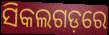
ସିକଲଗଡ଼ରେ